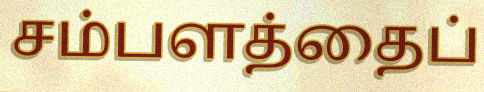
சம்பளத்தைப்